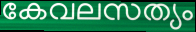
കേവലസത്യം